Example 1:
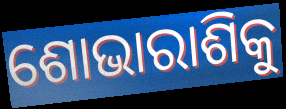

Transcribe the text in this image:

ଶୋଭାରାଶିକୁ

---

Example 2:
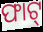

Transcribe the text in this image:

ଫାଟ୍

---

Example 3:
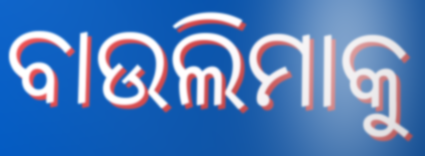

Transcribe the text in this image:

ବାଉଲିମାକୁ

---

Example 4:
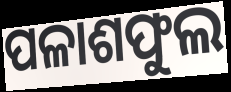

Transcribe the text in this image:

ପଳାଶଫୁଲ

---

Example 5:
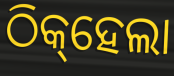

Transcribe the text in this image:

ଠିକ୍‌ହେଲା